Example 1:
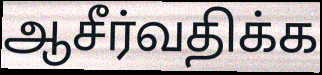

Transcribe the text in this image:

ஆசீர்வதிக்க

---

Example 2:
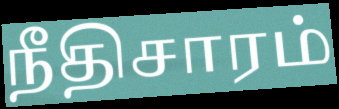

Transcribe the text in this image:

நீதிசாரம்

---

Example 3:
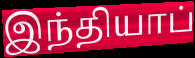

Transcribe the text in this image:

இந்தியாப்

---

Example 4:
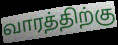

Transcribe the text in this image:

வாரத்திற்கு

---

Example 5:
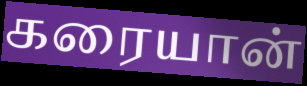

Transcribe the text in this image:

கரையான்